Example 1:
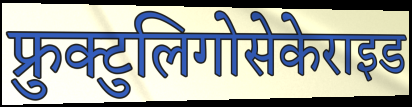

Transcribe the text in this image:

फ्रुक्टुलिगोसेकेराइड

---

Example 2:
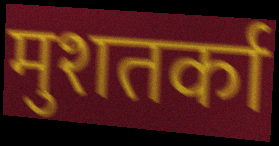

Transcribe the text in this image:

मुशतर्का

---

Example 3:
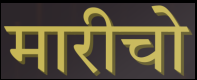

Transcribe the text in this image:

मारीचो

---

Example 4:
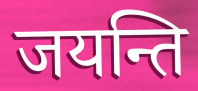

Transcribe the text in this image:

जयन्ति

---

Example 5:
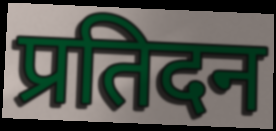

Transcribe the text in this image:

प्रतिदन